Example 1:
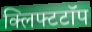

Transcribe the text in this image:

क्लिफ्टटॉप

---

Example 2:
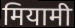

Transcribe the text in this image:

मियामी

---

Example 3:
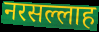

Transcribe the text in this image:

नरसल्लाह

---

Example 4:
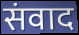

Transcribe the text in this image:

संवाद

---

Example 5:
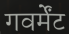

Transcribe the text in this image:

गवर्मेंट